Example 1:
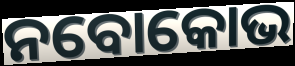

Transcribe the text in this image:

ନବୋକୋଭ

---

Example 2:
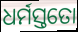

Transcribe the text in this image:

ଧର୍ମସ୍ତତୋ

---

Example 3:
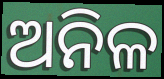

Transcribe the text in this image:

ଅନିଳ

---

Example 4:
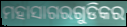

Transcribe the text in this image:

ମହାସାଗରଗୁଡିକର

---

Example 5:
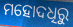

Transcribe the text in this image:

ମହୋଦଧିରୁ